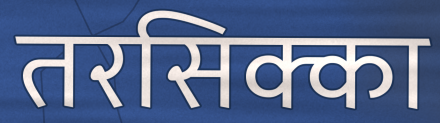
तरसिक्का